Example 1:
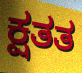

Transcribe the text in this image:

ಕ್ಷತತ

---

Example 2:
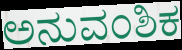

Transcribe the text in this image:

ಅನುವಂಶಿಕ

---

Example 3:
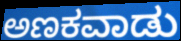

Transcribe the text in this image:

ಅಣಕವಾಡು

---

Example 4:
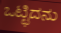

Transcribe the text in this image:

ಒಟ್ಟಿದನು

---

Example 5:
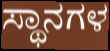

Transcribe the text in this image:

ಸ್ಥಾನಗಳ